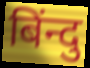
बिंन्दु